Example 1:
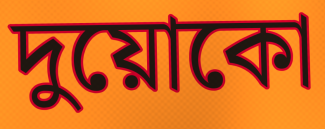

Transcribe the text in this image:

দুয়োকো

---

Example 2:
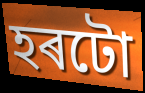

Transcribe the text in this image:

হৰটো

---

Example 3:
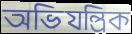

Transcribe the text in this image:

অভিযন্ত্ৰিক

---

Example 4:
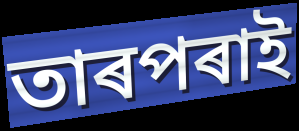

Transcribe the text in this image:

তাৰপৰাই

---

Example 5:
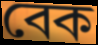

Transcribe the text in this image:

বেক